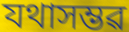
যথাসম্ভৱ